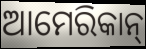
ଆମେରିକାନ୍